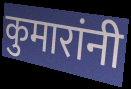
कुमारांनी